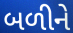
બળીને